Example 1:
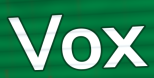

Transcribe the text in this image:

Vox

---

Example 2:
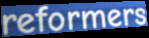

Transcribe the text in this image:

reformers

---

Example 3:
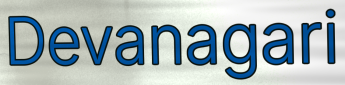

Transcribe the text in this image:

Devanagari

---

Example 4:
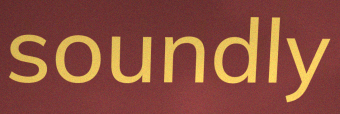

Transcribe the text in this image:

soundly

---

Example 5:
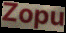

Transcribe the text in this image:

Zopu